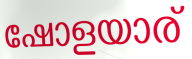
ഷോളയാര്